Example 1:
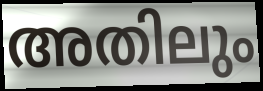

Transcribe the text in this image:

അതിലും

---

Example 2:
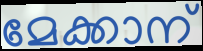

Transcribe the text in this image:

മേക്കാന്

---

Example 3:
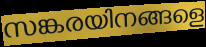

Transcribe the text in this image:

സങ്കരയിനങ്ങളെ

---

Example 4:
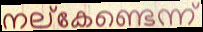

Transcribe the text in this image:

നല്കേണ്ടെന്ന്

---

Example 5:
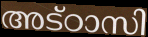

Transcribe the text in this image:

അട്ഠാസി